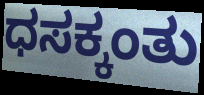
ಧಸಕ್ಕಂತು